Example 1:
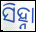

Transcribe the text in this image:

ସିହ୍ନା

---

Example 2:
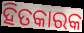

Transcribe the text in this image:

ହିତକାରକ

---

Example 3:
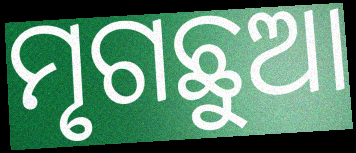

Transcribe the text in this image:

ମୃଗଛୁଆ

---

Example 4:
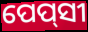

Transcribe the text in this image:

ପେପ୍‌ସୀ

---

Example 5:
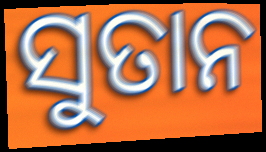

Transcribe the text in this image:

ସୁତାନ